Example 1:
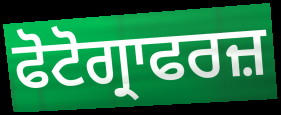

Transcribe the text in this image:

ਫੋਟੋਗ੍ਰਾਫਰਜ਼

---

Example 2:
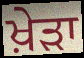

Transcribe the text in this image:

ਖ਼ੇੜਾ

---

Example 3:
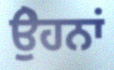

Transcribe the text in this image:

ਉੇਹਨਾਂ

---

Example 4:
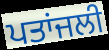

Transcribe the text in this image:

ਪਤਾਂਜਲੀ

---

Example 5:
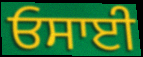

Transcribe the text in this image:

ਓਸਾਈ